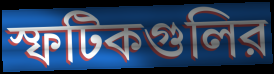
স্ফটিকগুলির